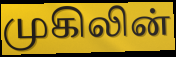
முகிலின்